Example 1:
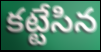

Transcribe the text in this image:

కట్టేసిన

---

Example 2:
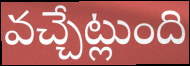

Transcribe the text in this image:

వచ్చేట్లుంది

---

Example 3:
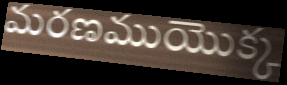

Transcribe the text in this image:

మరణముయొక్క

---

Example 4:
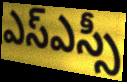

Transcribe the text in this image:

ఎస్ఎస్సీ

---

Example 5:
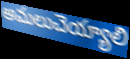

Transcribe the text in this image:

అమలుచెయ్యాలి